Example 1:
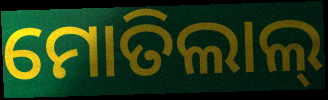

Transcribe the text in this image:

ମୋତିଲାଲ୍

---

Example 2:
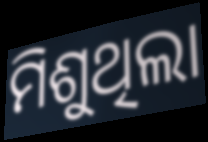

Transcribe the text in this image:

ମିଶୁଥିଲା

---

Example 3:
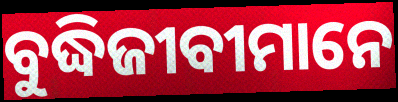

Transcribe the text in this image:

ବୁଦ୍ଧିଜୀବୀମାନେ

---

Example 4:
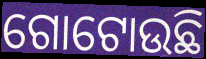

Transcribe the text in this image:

ଗୋଟୋଉଛି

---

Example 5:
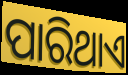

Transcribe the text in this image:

ପାରିଥାଏ